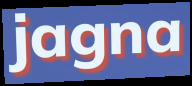
jagna